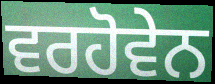
ਵਰਹੋਵੇਨ